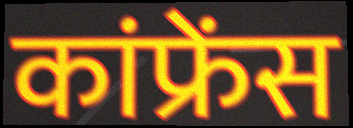
कांफ्रेंस